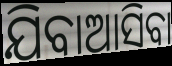
ଯିବାଆସିବା